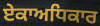
ਏਕਾਅਧਿਕਾਰ